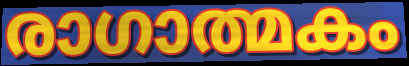
രാഗാത്മകം